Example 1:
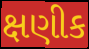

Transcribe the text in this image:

ક્ષણીક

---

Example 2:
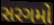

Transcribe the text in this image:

સરગમો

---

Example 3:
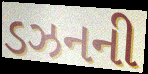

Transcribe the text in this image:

ડઝનની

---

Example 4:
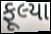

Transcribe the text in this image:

ફૂલ્યા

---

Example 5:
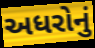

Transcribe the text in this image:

અધરોનું